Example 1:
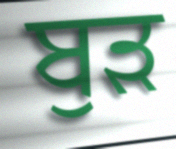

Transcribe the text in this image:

ਬੁੜ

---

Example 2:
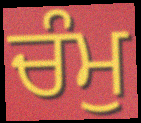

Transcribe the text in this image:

ਚੰਮੁ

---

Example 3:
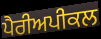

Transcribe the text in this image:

ਪੈਰੀਅਪੀਕਲ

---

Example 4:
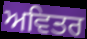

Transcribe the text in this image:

ਅਵਿਤਰ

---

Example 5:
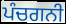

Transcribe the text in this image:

ਪੰਚਗਨੀ